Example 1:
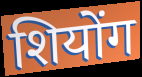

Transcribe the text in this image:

शियोंग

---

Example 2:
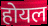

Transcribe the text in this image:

होयल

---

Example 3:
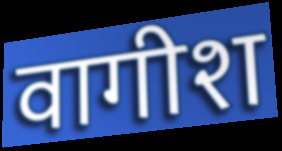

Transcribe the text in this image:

वागीश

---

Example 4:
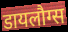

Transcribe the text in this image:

डायलौग्स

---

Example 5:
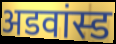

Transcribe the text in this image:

अडवांस्ड